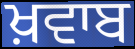
ਖ਼ਵਾਬ